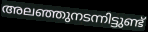
അലഞ്ഞുനടന്നിട്ടുണ്ട്